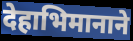
देहाभिमानाने